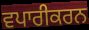
ਵਪਾਰੀਕਰਨ